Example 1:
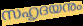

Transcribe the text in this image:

സഹൃദയനും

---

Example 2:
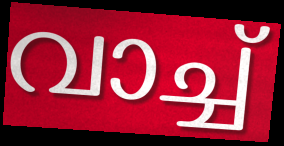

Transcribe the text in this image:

വാച്ച്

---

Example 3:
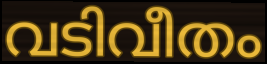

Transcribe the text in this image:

വടിവീതം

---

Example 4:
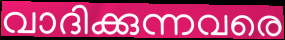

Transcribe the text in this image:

വാദിക്കുന്നവരെ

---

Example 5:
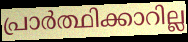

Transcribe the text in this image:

പ്രാർത്ഥിക്കാറില്ല